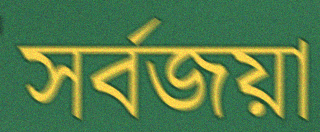
সৰ্বজয়া